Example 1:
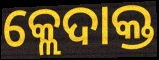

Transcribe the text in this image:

କ୍ଲେଦାକ୍ତ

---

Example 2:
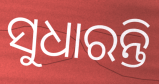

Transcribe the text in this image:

ସୁଧାରନ୍ତି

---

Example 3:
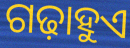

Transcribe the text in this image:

ଗଢ଼ାହୁଏ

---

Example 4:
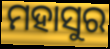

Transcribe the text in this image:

ମହାସୁର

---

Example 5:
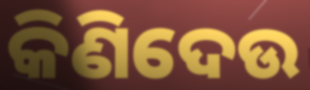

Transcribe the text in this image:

କିଣିଦେଉ